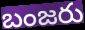
బంజరు